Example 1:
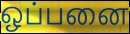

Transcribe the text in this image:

ஒப்பனை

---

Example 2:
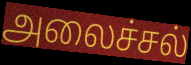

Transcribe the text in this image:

அலைச்சல்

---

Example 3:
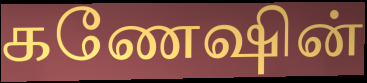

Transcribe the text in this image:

கணேஷின்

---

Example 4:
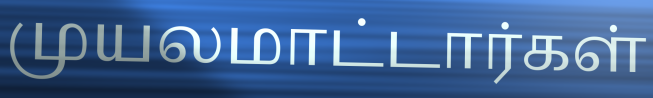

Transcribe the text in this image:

முயலமாட்டார்கள்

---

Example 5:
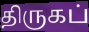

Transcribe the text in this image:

திருகப்